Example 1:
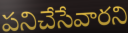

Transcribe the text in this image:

పనిచేసేవారని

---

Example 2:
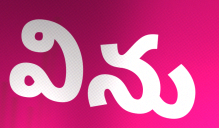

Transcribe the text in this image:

విను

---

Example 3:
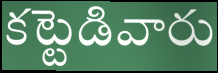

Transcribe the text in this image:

కట్టెడివారు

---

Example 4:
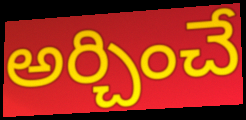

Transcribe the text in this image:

అర్చించే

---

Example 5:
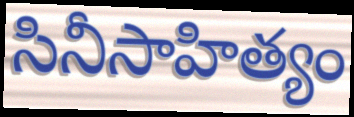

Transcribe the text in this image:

సినీసాహిత్యం